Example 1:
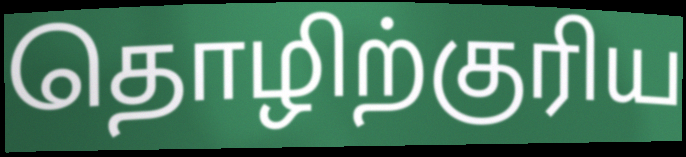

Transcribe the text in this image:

தொழிற்குரிய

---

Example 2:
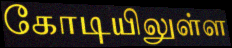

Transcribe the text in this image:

கோடியிலுள்ள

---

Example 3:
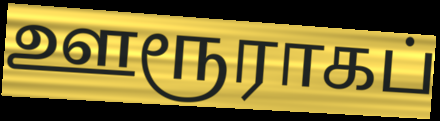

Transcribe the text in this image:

ஊரூராகப்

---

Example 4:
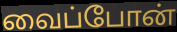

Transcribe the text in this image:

வைப்போன்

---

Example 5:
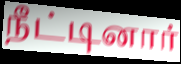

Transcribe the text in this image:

நீட்டினார்